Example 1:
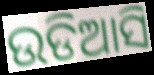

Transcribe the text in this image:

ଉଡିଆସି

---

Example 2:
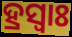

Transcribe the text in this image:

ହ୍ରସ୍ଵାଃ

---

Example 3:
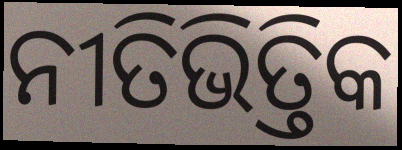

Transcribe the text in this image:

ନୀତିଭିତ୍ତିକ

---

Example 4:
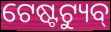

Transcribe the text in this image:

ଟେଷ୍ଟଟ୍ୟୁବ୍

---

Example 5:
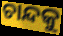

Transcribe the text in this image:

ଚାନ୍ଦକୁ